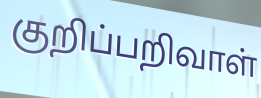
குறிப்பறிவாள்